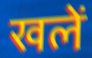
खलें